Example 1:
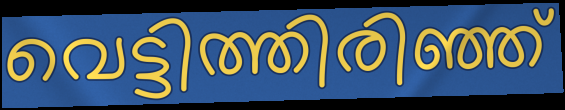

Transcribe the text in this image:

വെട്ടിത്തിരിഞ്ഞ്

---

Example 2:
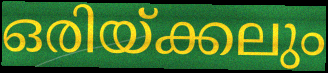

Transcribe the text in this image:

ഒരിയ്ക്കലും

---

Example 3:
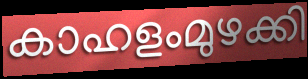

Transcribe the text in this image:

കാഹളംമുഴക്കി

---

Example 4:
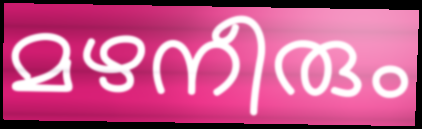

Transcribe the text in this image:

മഴനീരും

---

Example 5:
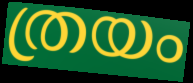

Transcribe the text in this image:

ത്രയം